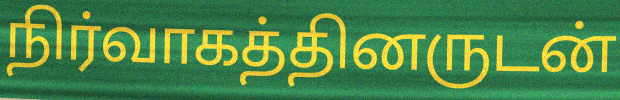
நிர்வாகத்தினருடன்